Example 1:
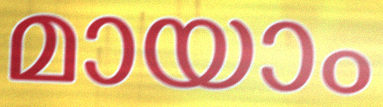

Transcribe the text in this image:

മായാം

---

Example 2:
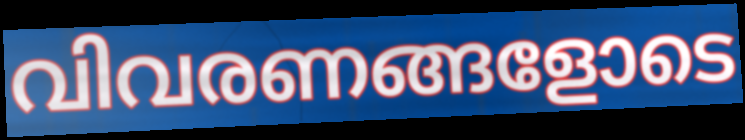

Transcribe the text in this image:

വിവരണങ്ങളോടെ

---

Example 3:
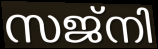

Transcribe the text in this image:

സജ്നി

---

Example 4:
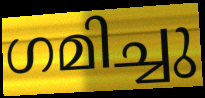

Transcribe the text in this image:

ഗമിച്ചു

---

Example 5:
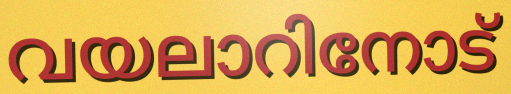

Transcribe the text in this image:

വയലാറിനോട്